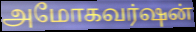
அமோகவர்ஷன்